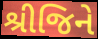
શ્રીજિને